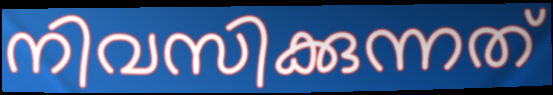
നിവസിക്കുന്നത്